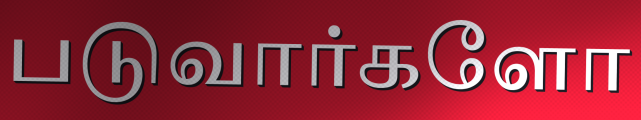
படுவார்களோ